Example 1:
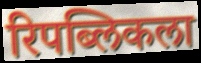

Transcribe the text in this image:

रिपब्लिकला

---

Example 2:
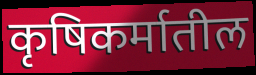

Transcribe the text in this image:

कृषिकर्मातील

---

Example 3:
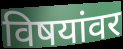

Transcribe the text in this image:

विषयांवर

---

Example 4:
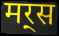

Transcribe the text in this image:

मर्स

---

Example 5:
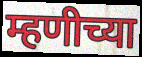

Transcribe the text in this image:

म्हणीच्या